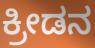
ಕ್ರೀಡನ